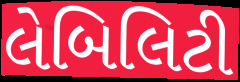
લેબિલિટી